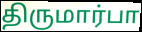
திருமார்பா